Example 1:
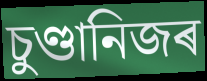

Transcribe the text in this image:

চুণ্ডানিজৰ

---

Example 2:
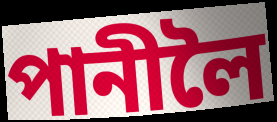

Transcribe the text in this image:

পানীলৈ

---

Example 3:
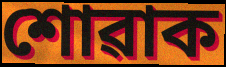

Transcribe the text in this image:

শোৱাক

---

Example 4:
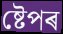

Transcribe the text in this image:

ষ্টেপৰ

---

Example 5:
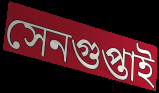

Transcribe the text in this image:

সেনগুপ্তাই